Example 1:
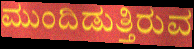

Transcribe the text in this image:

ಮುಂದಿಡುತ್ತಿರುವ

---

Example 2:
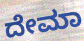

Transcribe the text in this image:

ದೇಮಾ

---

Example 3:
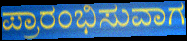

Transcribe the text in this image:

ಪ್ರಾರಂಭಿಸುವಾಗ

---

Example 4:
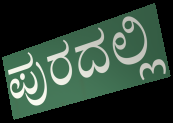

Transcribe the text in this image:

ಪುರದಲ್ಲಿ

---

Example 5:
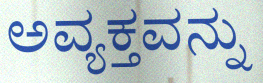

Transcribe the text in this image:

ಅವ್ಯಕ್ತವನ್ನು